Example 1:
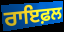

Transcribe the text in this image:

ਰਾਇਫ਼ਲ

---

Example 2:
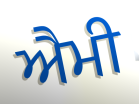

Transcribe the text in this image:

ਐਮੀ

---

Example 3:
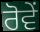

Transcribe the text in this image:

ਰੋਵੇਂ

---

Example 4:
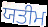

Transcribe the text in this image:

ਯਤੀਮ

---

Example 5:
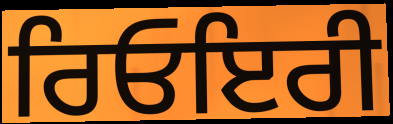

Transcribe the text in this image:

ਰਿਓਇਰੀ